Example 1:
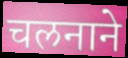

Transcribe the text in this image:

चलनाने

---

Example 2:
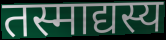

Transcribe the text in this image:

तस्माद्यस्य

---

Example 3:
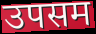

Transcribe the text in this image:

उपसम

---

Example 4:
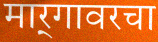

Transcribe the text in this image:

मार्गावरचा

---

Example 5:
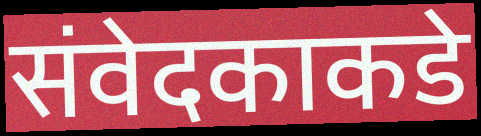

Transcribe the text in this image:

संवेदकाकडे